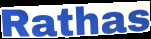
Rathas